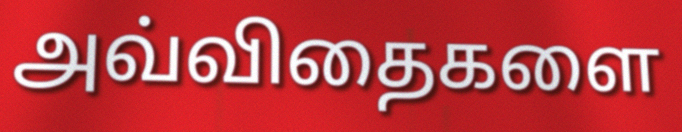
அவ்விதைகளை